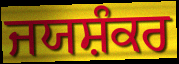
ਜਯਸ਼ੰਕਰ